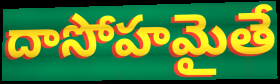
దాసోహమైతే